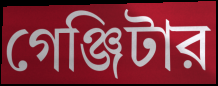
গেঞ্জিটার